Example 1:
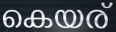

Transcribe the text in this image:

കെയര്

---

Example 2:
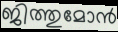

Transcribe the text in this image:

ജിത്തുമോൻ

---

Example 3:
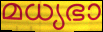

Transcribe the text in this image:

മധ്യഭാ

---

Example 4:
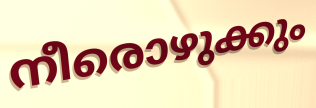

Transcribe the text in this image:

നീരൊഴുക്കും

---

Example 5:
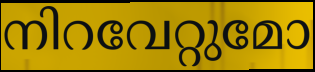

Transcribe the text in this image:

നിറവേറ്റുമോ